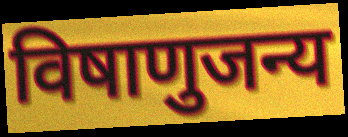
विषाणुजन्य